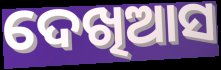
ଦେଖିଆସ